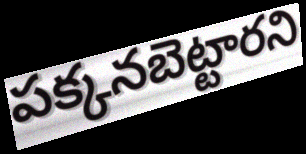
పక్కనబెట్టారని